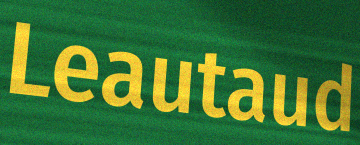
Leautaud